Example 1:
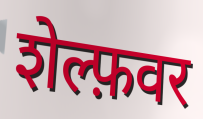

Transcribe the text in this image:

शेल्फ़वर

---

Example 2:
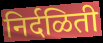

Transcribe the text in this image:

निर्दळिती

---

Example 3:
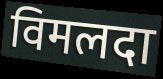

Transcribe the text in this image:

विमलदा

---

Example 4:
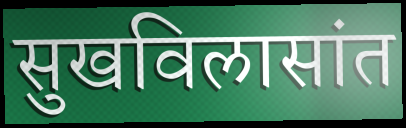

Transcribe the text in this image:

सुखविलासांत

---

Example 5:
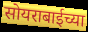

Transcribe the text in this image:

सोयराबाईच्या